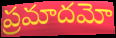
ప్రమాదమో